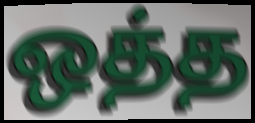
ஒத்த